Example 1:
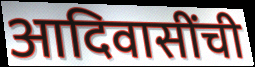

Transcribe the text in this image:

आदिवासींची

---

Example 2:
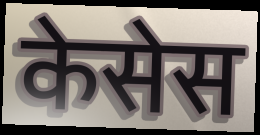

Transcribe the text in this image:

केसेस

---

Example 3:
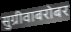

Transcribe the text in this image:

सुग्रीवाबरोबर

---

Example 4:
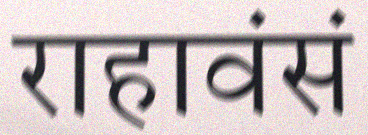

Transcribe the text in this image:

राहावंसं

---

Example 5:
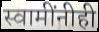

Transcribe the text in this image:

स्वामींनीही